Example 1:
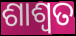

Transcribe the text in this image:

ଶାଶ୍ଵତ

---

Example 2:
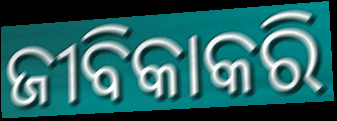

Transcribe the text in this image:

ଜୀବିକାକରି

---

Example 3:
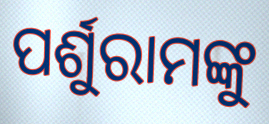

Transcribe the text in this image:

ପର୍ଶୁରାମଙ୍କୁ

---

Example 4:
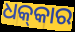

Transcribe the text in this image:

ଧକ୍‍କାର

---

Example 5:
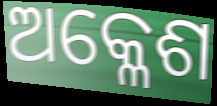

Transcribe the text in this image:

ଅକ୍ଳେଶ